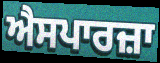
ਐਸਪਾਰਜ਼ਾ